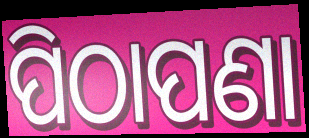
ପିଠାପଣା